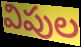
విపుల